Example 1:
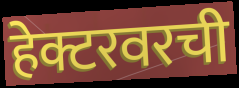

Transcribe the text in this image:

हेक्टरवरची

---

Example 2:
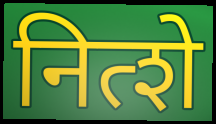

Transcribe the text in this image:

नित्शे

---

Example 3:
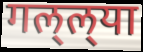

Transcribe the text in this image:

गल्ल्या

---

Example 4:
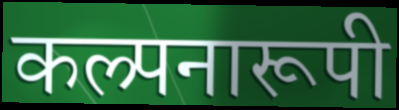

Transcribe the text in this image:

कल्पनारूपी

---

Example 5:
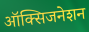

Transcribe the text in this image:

ऑक्सिजनेशन